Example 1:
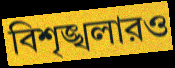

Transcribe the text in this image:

বিশৃঙ্খলারও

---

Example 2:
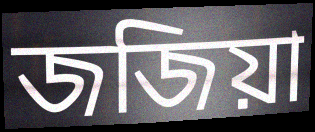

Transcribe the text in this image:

জজিয়া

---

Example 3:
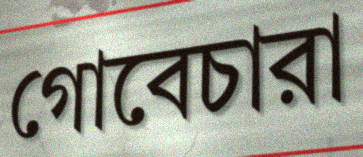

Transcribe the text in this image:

গোবেচারা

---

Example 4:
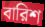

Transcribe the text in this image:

বারিশ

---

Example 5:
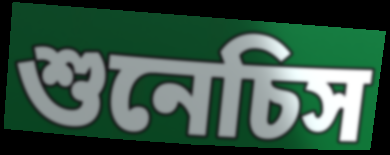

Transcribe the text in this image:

শুনেচিস